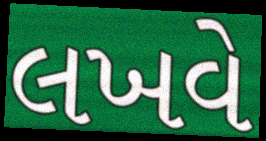
લખવે